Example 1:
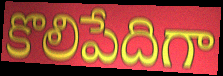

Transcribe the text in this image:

కొలిపేదిగా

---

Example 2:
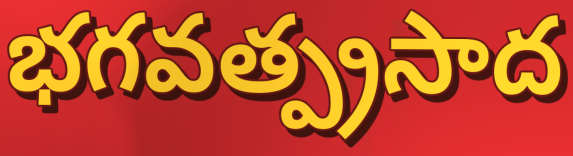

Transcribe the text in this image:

భగవత్ప్రసాద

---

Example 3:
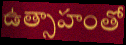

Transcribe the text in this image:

ఉత్సాహంతో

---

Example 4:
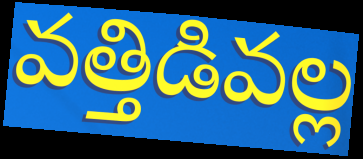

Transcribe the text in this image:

వత్తిడివల్ల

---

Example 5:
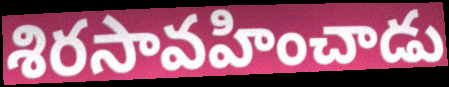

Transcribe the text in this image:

శిరసావహించాడు